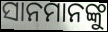
ସାନମାନଙ୍କୁ